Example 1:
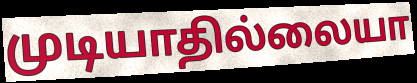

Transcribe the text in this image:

முடியாதில்லையா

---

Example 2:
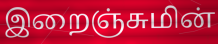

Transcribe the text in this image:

இறைஞ்சுமின்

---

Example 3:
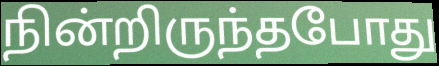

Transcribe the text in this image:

நின்றிருந்தபோது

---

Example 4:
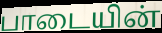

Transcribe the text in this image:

பாடையின்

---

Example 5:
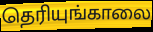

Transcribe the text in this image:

தெரியுங்காலை